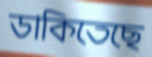
ডাকিতেছে